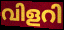
വിളറി